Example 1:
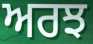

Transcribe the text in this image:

ਅਰਝ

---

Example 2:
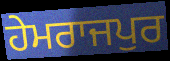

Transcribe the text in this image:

ਹੇਮਰਾਜਪੁਰ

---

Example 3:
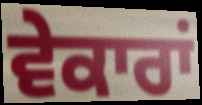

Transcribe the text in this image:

ਵੇਕਾਰਾਂ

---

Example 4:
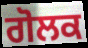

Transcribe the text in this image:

ਗੋਲਕ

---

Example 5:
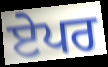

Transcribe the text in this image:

ਏਪਰ